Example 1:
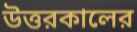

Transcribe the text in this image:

উত্তরকালের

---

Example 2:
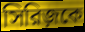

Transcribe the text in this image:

সিরিজ়কে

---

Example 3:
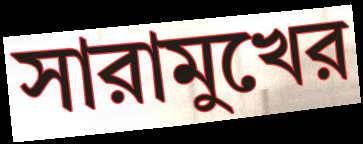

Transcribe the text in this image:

সারামুখের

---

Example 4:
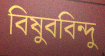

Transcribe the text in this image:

বিষুববিন্দু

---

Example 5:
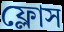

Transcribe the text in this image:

ফ্লোস